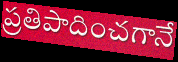
ప్రతిపాదించగానే